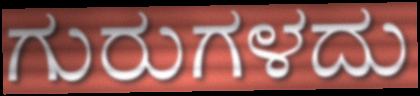
ಗುರುಗಳದು